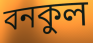
বনকুল